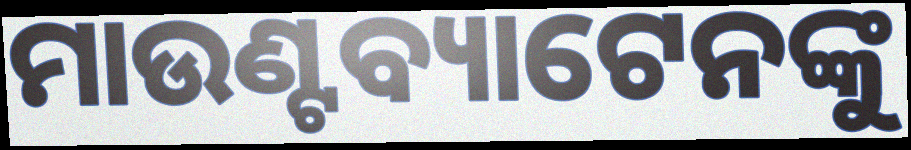
ମାଉଣ୍ଟବ୍ୟାଟେନଙ୍କୁ